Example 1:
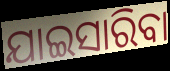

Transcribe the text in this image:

ଯାଇସାରିବା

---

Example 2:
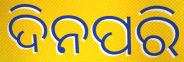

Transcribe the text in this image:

ଦିନପରି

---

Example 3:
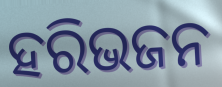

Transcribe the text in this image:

ହରିଭଜନ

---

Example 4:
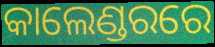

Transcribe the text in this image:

କାଲେଣ୍ଡରରେ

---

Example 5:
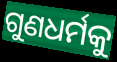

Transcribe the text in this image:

ଗୁଣଧର୍ମକୁ